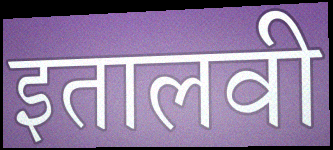
इतालवी